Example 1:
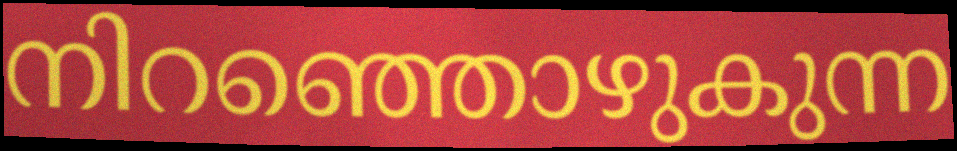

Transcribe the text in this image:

നിറഞ്ഞൊഴുകുന്ന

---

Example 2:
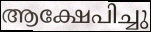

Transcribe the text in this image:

ആക്ഷേപിച്ചു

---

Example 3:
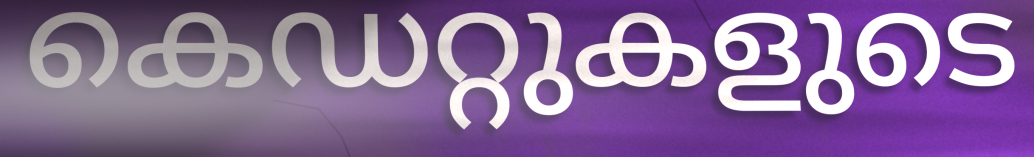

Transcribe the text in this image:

കെഡറ്റുകളുടെ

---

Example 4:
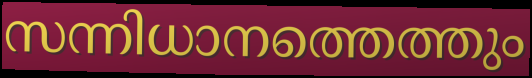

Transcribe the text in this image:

സന്നിധാനത്തെത്തും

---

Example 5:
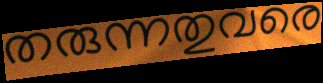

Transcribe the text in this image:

തരുന്നതുവരെ